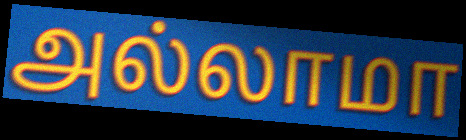
அல்லாமா